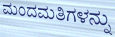
ಮಂದಮತಿಗಳನ್ನು